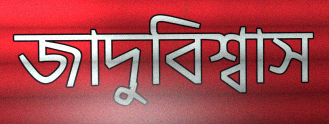
জাদুবিশ্বাস